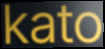
kato